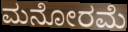
ಮನೋರಮೆ